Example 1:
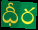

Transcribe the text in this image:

ధీర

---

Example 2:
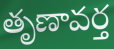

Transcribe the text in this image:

తృణావర్త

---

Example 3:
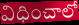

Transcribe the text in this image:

విధించాలో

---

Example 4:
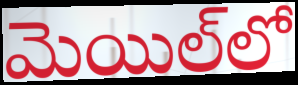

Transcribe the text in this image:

మెయిల్‌లో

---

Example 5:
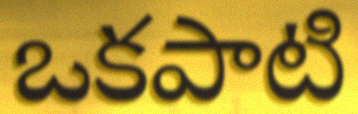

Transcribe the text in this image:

ఒకపాటి